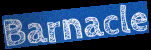
Barnacle